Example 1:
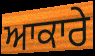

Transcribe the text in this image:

ਆਕਾਰੇ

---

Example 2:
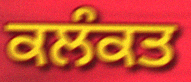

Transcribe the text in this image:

ਕਲੰਕਤ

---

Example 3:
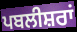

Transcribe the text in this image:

ਪਬਲੀਸ਼ਰਾਂ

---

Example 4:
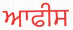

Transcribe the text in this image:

ਆਫੀਸ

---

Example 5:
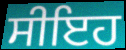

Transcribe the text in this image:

ਸੀਇਹ